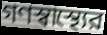
গণস্বাস্থ্যের